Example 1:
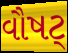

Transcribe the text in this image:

વૌષટ્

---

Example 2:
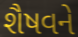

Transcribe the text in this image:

શૈષવને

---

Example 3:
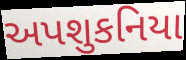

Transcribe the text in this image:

અપશુકનિયા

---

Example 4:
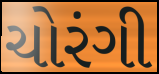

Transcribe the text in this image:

ચોરંગી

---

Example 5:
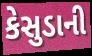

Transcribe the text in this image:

કેસુડાની